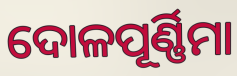
ଦୋଳପୂର୍ଣ୍ଣିମା